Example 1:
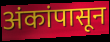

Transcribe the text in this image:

अंकांपासून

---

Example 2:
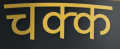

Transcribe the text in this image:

चक्‍क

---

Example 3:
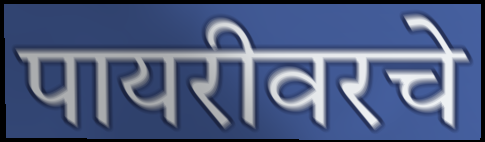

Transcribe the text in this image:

पायरीवरचे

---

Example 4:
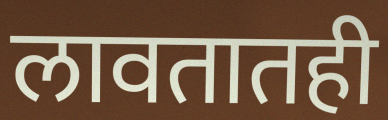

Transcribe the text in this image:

लावतातही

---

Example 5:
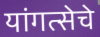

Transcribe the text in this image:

यांगत्सेचे